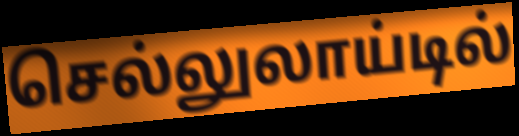
செல்லுலாய்டில்